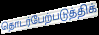
தொடர்பேற்படுத்திக்